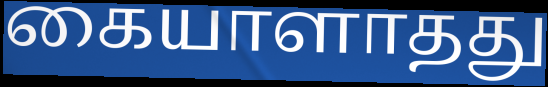
கையாளாதது